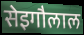
सेइगौलाल